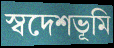
স্বদেশভূমি